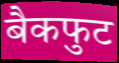
बैकफुट